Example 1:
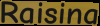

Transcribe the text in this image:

Raisina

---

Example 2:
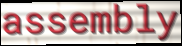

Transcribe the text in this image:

assembly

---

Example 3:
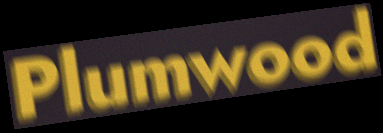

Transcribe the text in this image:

Plumwood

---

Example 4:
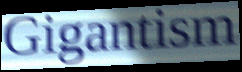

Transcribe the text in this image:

Gigantism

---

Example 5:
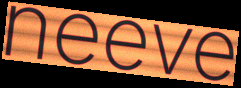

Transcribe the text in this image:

neeve